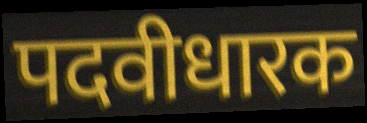
पदवीधारक